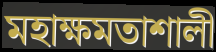
মহাক্ষমতাশালী